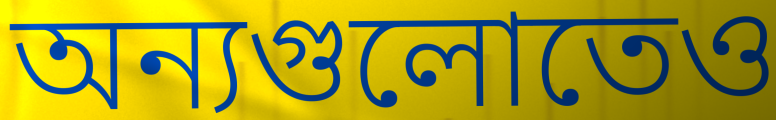
অন্যগুলোতেও